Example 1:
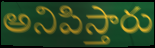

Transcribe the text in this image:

అనిపిస్తారు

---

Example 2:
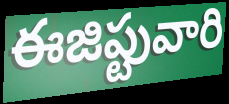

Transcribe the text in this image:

ఈజిప్టువారి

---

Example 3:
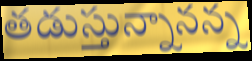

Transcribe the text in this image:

తడుస్తున్నానన్న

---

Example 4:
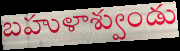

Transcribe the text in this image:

బహుళాశ్వుండు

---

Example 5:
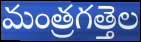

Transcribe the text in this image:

మంత్రగత్తెల